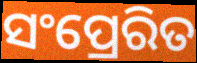
ସଂପ୍ରେରିତ